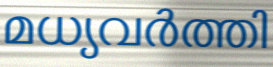
മധ്യവർത്തി